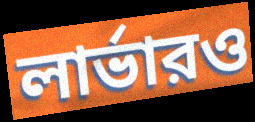
লার্ভারও